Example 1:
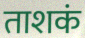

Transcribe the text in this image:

ताशकं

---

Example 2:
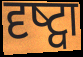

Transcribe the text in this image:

दृष्ट्वा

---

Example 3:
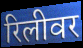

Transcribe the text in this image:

रिलीवर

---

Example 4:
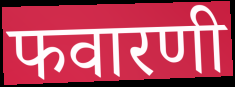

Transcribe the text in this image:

फवारणी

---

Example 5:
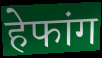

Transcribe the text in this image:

हेफांग